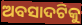
ଅବସାଦଟିକୁ